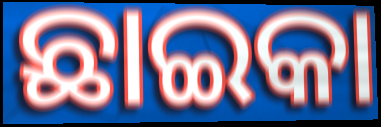
ଛାଇକା